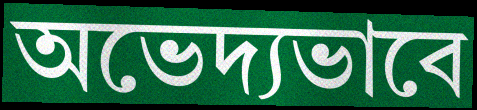
অভেদ্যভাবে